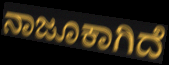
ನಾಜೂಕಾಗಿದೆ